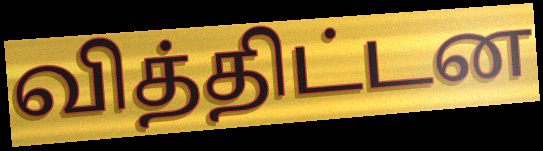
வித்திட்டன